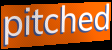
pitched